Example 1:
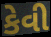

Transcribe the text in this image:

કેવી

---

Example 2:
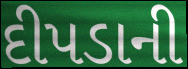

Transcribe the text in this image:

દીપડાની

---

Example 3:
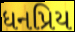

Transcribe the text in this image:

ધનપ્રિય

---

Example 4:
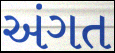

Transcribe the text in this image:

અંગત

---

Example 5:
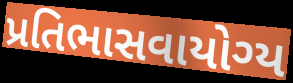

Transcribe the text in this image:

પ્રતિભાસવાયોગ્ય